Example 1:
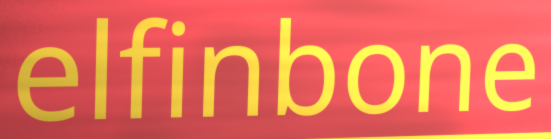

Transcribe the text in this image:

elfinbone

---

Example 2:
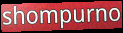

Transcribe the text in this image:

shompurno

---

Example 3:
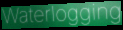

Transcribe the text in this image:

Waterlogging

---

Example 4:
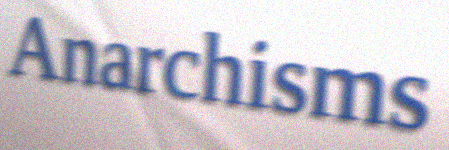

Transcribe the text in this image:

Anarchisms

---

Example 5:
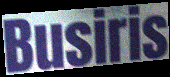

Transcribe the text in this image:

Busiris